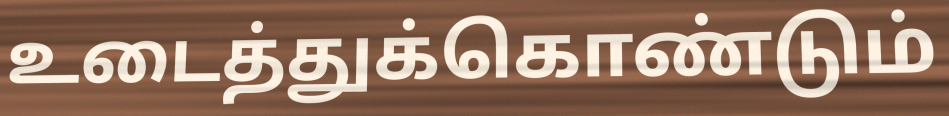
உடைத்துக்கொண்டும்